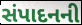
સંપાદનની